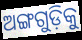
ଅଙ୍ଗଗୁଡ଼ିକୁ